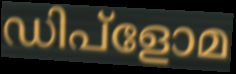
ഡിപ്ളോമ